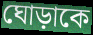
ঘোড়াকে